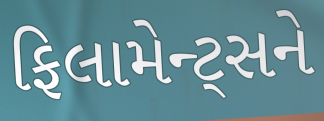
ફિલામેન્ટ્સને